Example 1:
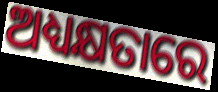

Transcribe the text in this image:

ଅଧ୍ଯକ୍ଷତାରେ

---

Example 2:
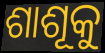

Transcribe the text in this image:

ଶାଶୂକୁ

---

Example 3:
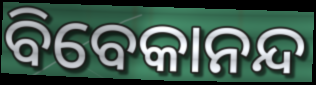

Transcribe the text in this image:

ବିବେକାନନ୍ଦ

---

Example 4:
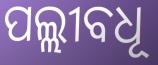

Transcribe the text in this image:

ପଲ୍ଲୀବଧୂ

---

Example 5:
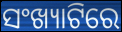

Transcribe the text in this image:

ସଂଖ୍ୟାଟିରେ